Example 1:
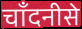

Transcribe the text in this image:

चाँदनीसे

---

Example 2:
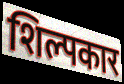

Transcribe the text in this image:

शिल्पकार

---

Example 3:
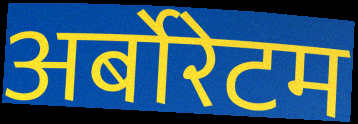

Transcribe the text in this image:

अर्बोरेटम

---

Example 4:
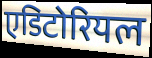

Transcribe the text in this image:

एडिटोरियल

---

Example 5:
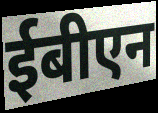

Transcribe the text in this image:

ईबीएन